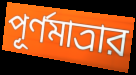
পূর্ণমাত্রার